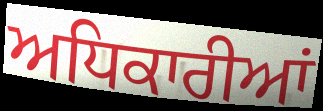
ਅਧਿਕਾਰੀਆਂ